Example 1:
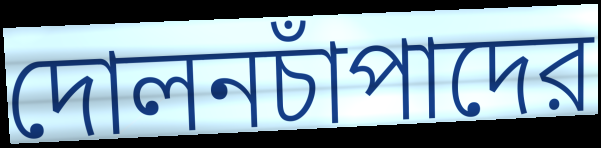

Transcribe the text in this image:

দোলনচাঁপাদের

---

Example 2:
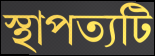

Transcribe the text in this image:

স্থাপত্যটি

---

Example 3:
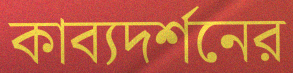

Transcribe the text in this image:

কাব্যদর্শনের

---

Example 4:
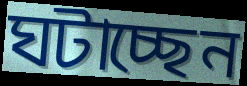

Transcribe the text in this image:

ঘটাচ্ছেন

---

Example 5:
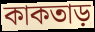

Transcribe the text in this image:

কাকতাড়